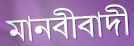
মানবীবাদী